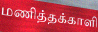
மணித்தக்காளி